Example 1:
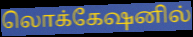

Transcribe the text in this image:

லொக்கேஷனில்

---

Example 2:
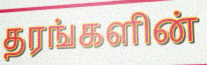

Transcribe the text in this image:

தரங்களின்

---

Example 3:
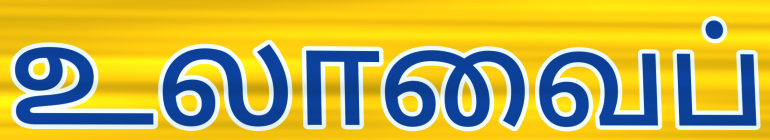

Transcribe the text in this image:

உலாவைப்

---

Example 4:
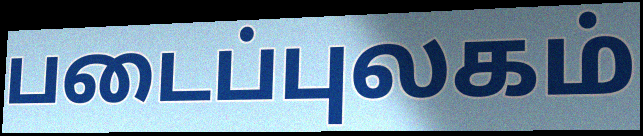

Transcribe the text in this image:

படைப்புலகம்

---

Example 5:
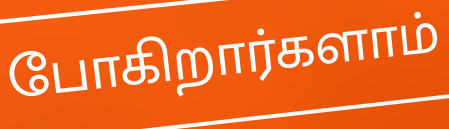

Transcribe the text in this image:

போகிறார்களாம்